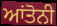
ਆਂਤੋਨੀ